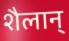
शैलान्